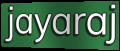
jayaraj